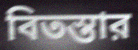
বিতস্তার